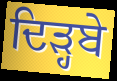
ਦਿੜ੍ਹਬੇ